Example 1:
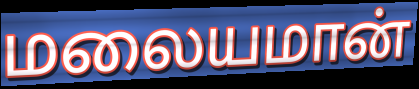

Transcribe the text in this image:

மலையமான்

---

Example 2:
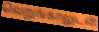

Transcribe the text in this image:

வெறுங்காலுடன்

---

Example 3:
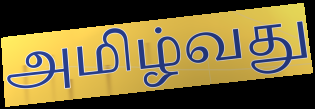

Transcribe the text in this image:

அமிழ்வது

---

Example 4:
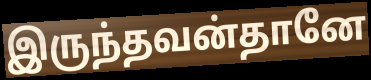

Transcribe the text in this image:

இருந்தவன்தானே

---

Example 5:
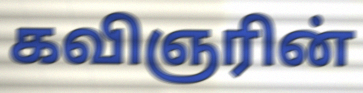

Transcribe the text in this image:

கவிஞரின்